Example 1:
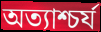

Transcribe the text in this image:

অত্যাশ্চর্য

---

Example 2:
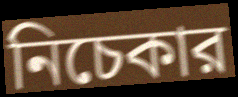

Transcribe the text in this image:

নিচেকার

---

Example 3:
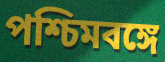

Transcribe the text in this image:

পশ্চিমবঙ্গে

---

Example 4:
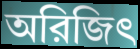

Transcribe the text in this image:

অরিজিৎ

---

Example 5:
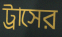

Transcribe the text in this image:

ট্রাসের